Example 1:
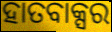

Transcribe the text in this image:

ହାତବାକ୍ସର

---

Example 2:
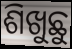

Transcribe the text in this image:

ଶିଖୁଛୁ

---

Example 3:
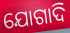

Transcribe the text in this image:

ଯୋଗାଦି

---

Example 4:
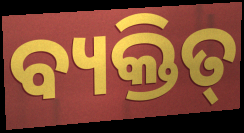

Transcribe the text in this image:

ବ୍ୟକ୍ତିତ୍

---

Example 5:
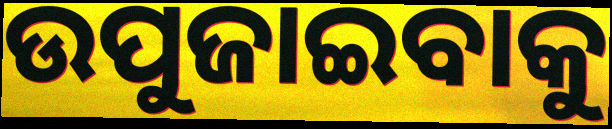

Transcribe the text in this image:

ଉପୁଜାଇବାକୁ